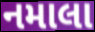
નમાલા